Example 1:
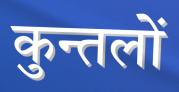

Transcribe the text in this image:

कुन्तलों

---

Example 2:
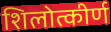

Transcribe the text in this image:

शिलोत्कीर्ण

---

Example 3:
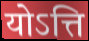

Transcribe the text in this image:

योऽत्ति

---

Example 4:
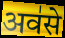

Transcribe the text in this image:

अव॑से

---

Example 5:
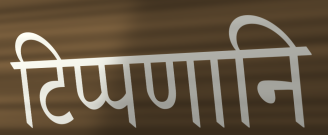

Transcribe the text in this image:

टिप्पणानि